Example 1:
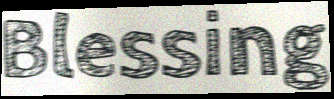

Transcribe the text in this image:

Blessing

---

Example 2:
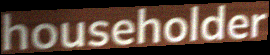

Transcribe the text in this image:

householder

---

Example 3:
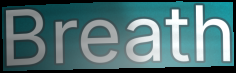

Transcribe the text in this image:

Breath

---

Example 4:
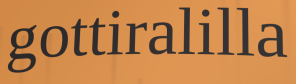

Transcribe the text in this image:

gottiralilla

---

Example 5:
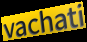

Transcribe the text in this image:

vachati